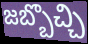
జబ్బొచ్చి